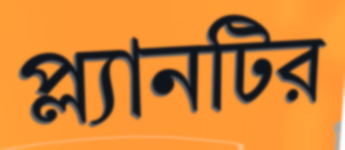
প্ল্যানটির